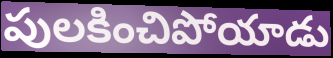
పులకించిపోయాడు